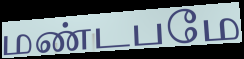
மண்டபமே